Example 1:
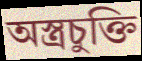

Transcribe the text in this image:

অস্ত্রচুক্তি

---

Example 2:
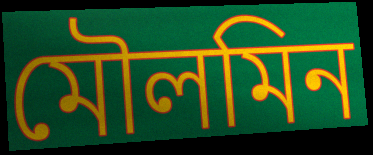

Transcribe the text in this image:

মৌলমিন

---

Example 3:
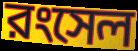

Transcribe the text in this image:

রংসেল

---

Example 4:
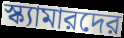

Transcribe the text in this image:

স্ক্যামারদের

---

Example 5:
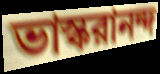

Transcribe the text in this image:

ভাস্করানন্দ